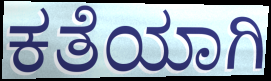
ಕತೆಯಾಗಿ